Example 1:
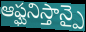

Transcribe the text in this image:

ఆఫ్ఘనిస్తాన్పై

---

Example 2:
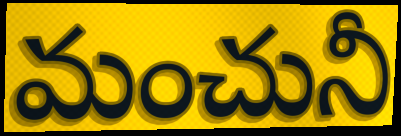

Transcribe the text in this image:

మంచునీ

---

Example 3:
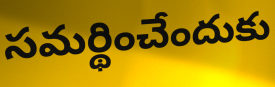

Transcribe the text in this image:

సమర్థించేందుకు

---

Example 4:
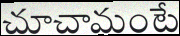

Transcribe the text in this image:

చూచామంటే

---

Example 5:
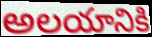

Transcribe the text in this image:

అలయానికి